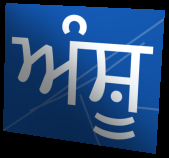
ਅੰਸ਼ੂ